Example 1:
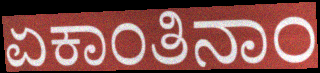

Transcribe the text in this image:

ಏಕಾಂತಿನಾಂ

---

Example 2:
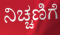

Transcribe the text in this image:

ನಿಚ್ಚಣಿಗೆ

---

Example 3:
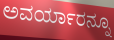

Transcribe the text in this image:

ಅವರ್ಯಾರನ್ನೂ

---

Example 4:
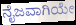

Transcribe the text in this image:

ನೈಜವಾಗಿಯೇ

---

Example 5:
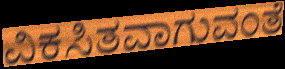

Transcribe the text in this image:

ವಿಕಸಿತವಾಗುವಂತೆ